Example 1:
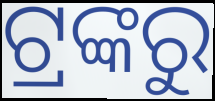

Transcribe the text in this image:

ଟ୍ରଙ୍କରୁ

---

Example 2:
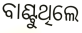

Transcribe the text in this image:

ବାଣ୍ଟୁଥିଲେ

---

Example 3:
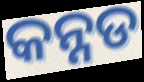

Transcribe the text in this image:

କନ୍ନଡ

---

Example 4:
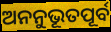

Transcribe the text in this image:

ଅନନୁଭୂତପୂର୍ବ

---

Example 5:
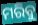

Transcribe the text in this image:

ମରିବୁ